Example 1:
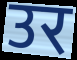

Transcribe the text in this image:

उर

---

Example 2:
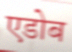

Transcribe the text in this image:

एडोब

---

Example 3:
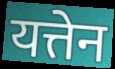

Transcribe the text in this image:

यत्तेन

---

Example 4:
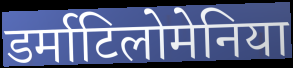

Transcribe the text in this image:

डर्माटिलोमेनिया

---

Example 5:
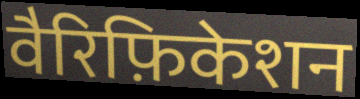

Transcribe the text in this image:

वैरिफ़िकेशन